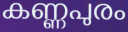
കണ്ണപുരം